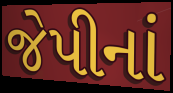
જેપીનાં